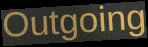
Outgoing